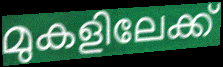
മുകളിലേക്ക്